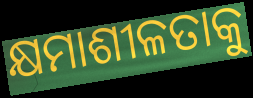
କ୍ଷମାଶୀଳତାକୁ